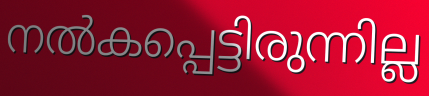
നൽകപ്പെട്ടിരുന്നില്ല